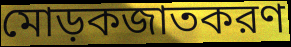
মোড়কজাতকরণ